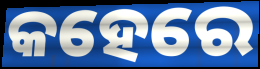
କହେରେ